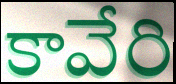
కావేరి